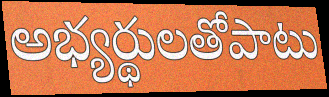
అభ్యర్థులతోపాటు